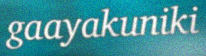
gaayakuniki